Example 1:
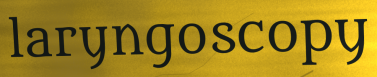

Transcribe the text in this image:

laryngoscopy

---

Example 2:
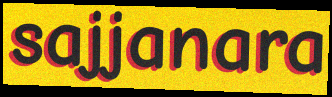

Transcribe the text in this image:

sajjanara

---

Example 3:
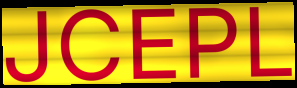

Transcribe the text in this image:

JCEPL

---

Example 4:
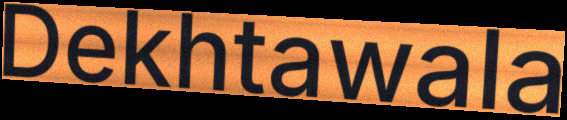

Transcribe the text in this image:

Dekhtawala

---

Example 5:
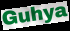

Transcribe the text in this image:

Guhya